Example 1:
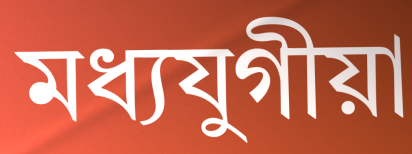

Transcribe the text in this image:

মধ্যযুগীয়া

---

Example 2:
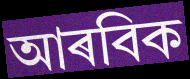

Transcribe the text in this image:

আৰবিক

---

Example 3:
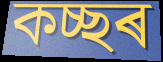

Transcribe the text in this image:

কচ্ছৰ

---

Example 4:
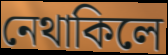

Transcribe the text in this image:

নেথাকিলে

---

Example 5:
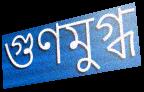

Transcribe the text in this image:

গুণমুগ্ধ